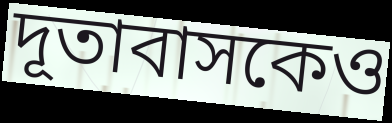
দূতাবাসকেও